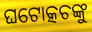
ଘଟୋତ୍କଚଙ୍କୁ